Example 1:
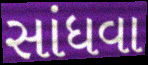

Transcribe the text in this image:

સાંધવા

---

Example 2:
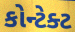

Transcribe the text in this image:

કોન્ટેક્ટ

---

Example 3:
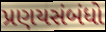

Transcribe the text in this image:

પ્રણયસંબંધો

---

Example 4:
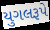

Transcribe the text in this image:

યુગલરૂપે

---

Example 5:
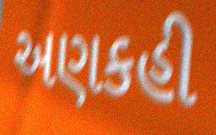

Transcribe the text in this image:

અણકહી